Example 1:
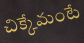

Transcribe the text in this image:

చిక్కేమంటే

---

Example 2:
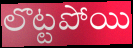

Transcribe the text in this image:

లొట్టపోయి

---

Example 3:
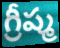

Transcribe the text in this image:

గ్రీష్మ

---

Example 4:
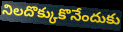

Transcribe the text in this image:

నిలదొక్కుకొనేందుకు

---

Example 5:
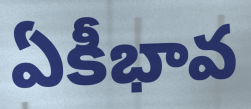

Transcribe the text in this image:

ఏకీభావ